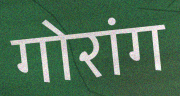
गोरांग